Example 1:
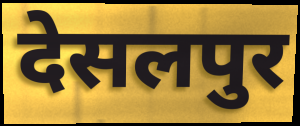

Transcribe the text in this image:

देसलपुर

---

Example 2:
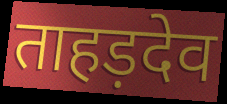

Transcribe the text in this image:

ताहड़देव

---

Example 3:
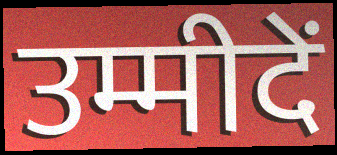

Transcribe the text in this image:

उम्‍मीदें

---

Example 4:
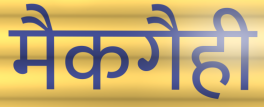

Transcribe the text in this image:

मैकगैही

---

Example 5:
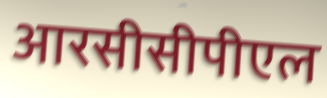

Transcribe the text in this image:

आरसीसीपीएल